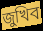
জুখিব